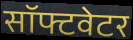
सॉफ्टवेटर